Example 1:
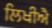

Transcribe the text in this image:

ਲਿਖੀਐ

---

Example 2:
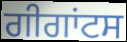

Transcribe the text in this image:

ਗੀਗਾਂਟਸ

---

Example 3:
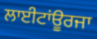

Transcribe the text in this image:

ਲਾਈਟਾਂਊਰਜਾ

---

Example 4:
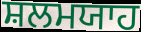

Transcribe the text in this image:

ਸ਼ਲਮਯਾਹ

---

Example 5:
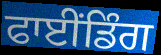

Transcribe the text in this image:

ਫਾਈਂਡਿੰਗ